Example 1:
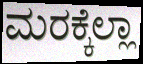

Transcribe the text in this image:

ಮರಕ್ಕೆಲ್ಲಾ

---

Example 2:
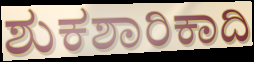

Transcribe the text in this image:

ಶುಕಶಾರಿಕಾದಿ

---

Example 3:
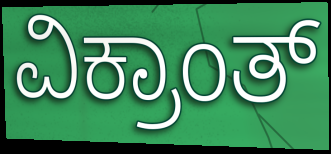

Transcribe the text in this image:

ವಿಕ್ರಾಂತ್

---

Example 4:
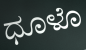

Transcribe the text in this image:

ಧೂಳೊ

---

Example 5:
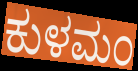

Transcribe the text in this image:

ಕುಳಮಂ